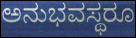
ಅನುಭವಸ್ಥರೂ